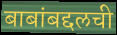
बाबांबद्दलची